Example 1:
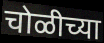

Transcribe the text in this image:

चोळीच्या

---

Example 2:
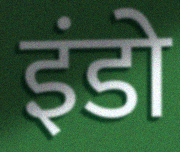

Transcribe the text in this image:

इंडो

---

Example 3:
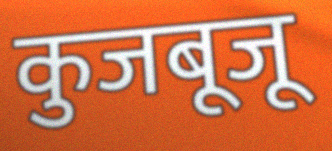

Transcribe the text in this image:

कुजबूजू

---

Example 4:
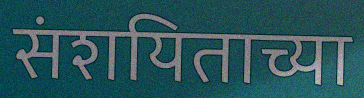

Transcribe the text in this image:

संशयिताच्या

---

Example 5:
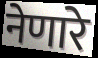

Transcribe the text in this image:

नेणारे